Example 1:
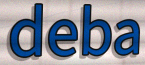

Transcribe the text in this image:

deba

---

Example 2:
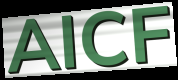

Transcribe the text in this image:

AICF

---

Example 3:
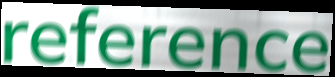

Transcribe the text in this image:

reference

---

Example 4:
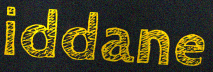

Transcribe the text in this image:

iddane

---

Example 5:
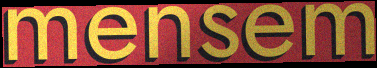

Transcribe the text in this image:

mensem